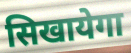
सिखायेगा